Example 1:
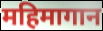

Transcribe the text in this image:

महिमागान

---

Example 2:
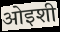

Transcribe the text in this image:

ओइशी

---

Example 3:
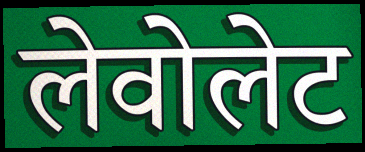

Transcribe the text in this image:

लेवोलेट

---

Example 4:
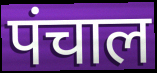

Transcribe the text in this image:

पंचाल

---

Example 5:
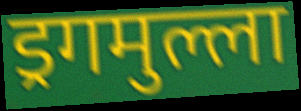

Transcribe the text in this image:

ड्रगमुल्ला